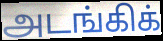
அடங்கிக்